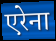
एरेना